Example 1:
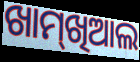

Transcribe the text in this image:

ଖାମ୍‌ଖିଆଲ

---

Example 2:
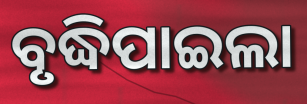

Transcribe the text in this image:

ବୃଦ୍ଧିପାଇଲା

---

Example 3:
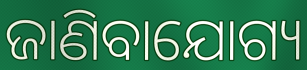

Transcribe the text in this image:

ଜାଣିବାଯୋଗ୍ୟ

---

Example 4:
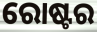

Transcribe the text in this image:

ରୋଷ୍ଟର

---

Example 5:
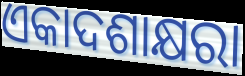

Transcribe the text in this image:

ଏକାଦଶାକ୍ଷରା